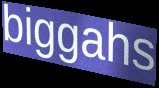
biggahs